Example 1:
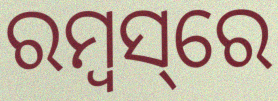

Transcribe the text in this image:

ରମ୍ବସ୍‌ରେ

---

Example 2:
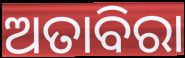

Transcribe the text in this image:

ଅତାବିରା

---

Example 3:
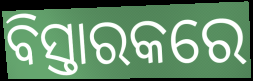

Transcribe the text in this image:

ବିସ୍ତାରକରେ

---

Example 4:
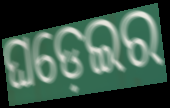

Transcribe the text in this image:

ଘଡ଼େଇର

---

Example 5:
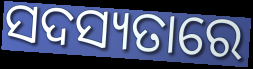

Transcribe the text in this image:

ସଦସ୍ୟତାରେ